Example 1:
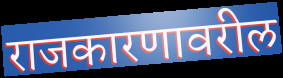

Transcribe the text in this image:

राजकारणावरील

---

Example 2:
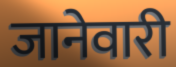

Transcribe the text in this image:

जानेवारी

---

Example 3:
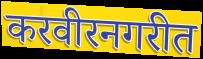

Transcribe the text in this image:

करवीरनगरीत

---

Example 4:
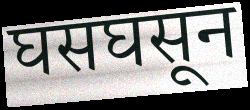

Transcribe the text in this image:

घसघसून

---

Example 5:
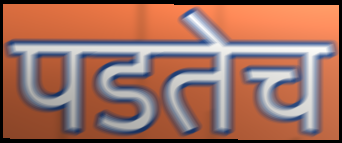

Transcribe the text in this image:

पडतेच